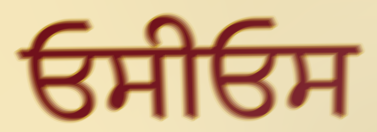
ਓਸੀਓਸ